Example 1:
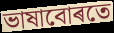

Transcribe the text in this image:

ভাষাবোৰতে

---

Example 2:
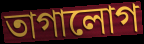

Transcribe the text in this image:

তাগালোগ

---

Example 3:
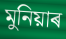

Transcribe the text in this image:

মুনিয়াৰ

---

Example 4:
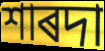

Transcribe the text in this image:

শাৰদা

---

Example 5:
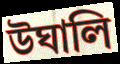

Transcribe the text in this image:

উঘালি